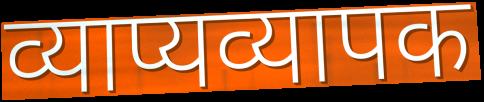
व्याप्यव्यापक